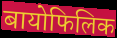
बायोफिलिक